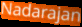
Nadarajan